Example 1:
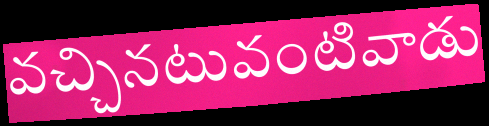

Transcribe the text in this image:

వచ్చినటువంటివాడు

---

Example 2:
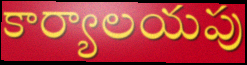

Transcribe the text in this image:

కార్యాలయపు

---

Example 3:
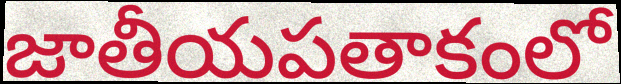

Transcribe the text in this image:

జాతీయపతాకంలో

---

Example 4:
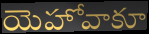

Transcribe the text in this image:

యెహోవాకూ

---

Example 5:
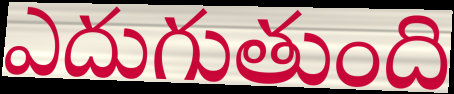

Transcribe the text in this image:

ఎదుగుతుంది